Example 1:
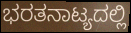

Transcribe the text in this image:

ಭರತನಾಟ್ಯದಲ್ಲಿ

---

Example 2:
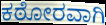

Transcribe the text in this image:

ಕಠೋರವಾಗಿ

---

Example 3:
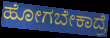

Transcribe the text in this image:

ಹೋಗಬೇಕಾದ್ರೆ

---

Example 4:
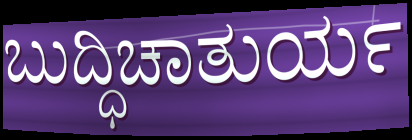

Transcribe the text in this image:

ಬುದ್ಧಿಚಾತುರ್ಯ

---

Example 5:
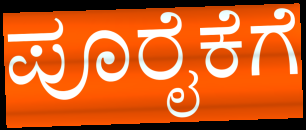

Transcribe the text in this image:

ಪೂರೈಕೆಗೆ